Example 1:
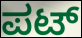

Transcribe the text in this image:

ಪಟ್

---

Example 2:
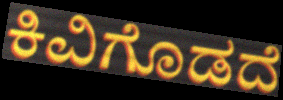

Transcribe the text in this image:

ಕಿವಿಗೊಡದೆ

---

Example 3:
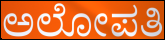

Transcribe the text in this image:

ಅಲೋಪತಿ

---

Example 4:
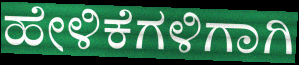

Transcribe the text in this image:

ಹೇಳಿಕೆಗಳಿಗಾಗಿ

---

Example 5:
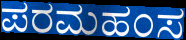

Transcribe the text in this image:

ಪರಮಹಂಸ